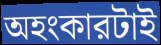
অহংকারটাই